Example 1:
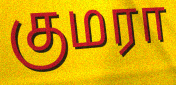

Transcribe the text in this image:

குமரா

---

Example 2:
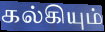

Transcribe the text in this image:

கல்கியும்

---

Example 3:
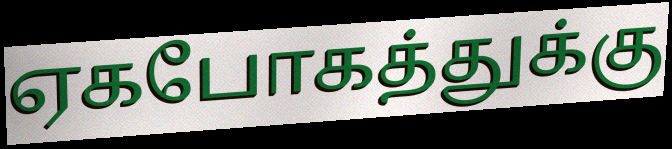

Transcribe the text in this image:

ஏகபோகத்துக்கு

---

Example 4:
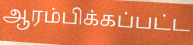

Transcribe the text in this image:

ஆரம்பிக்கப்பட்ட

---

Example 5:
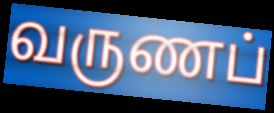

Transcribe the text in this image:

வருணப்